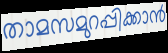
താമസമുറപ്പിക്കാൻ